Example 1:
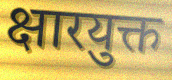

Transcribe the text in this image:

क्षारयुक्त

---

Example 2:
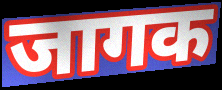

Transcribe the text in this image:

जागक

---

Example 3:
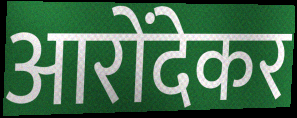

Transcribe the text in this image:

आरोंदेकर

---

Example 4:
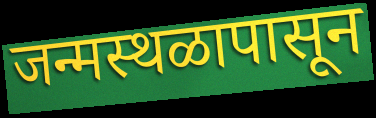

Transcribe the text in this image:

जन्मस्थळापासून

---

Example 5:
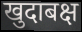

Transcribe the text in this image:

खुदाबक्ष